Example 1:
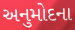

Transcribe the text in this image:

અનુમોદના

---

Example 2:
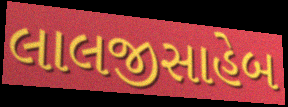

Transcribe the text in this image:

લાલજીસાહેબ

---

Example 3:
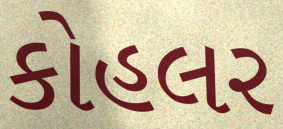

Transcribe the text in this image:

કોહલર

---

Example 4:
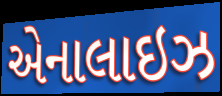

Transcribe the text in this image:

એનાલાઇઝ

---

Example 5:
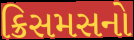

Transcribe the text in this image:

ક્રિસમસનો